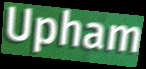
Upham